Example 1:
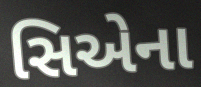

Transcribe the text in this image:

સિએના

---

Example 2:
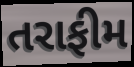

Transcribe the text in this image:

તરાફીમ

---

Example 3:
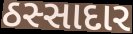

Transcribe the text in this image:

ઠસ્સાદાર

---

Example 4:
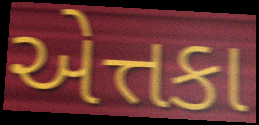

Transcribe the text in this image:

એત્તકા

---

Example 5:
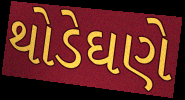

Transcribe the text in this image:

થોડેઘણે